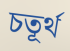
চতূর্থ